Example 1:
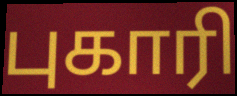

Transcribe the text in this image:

புகாரி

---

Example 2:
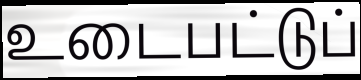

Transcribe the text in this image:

உடைபட்டுப்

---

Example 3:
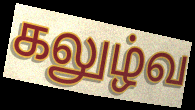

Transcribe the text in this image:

கலுழ்வ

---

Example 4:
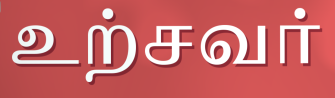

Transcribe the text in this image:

உற்சவர்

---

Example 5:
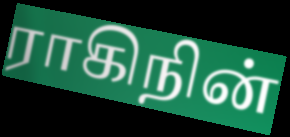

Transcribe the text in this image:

ராகிநின்